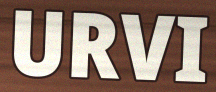
URVI